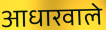
आधारवाले